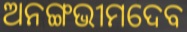
ଅନଙ୍ଗଭୀମଦେବ